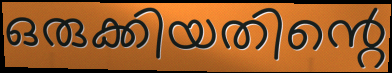
ഒരുക്കിയതിന്റെ